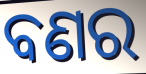
ବଣର